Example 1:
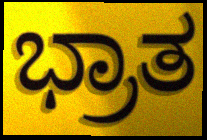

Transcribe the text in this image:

ಭ್ರಾತ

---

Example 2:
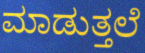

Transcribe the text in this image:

ಮಾಡುತ್ತಲೆ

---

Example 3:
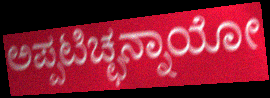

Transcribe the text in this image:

ಅಪ್ಪಟಿಚ್ಛನ್ನಾಯೋ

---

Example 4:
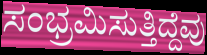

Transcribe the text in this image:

ಸಂಭ್ರಮಿಸುತ್ತಿದ್ದೆವು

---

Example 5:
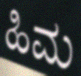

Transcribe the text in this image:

ಹಿಮ